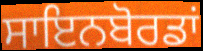
ਸਾਇਨਬੋਰਡਾਂ